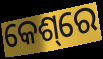
କେଶ୍‌ରେ